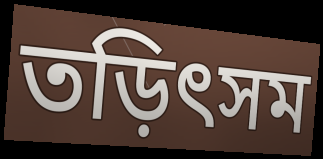
তড়িৎসম